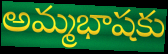
అమ్మభాషకు